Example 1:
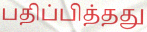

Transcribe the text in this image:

பதிப்பித்தது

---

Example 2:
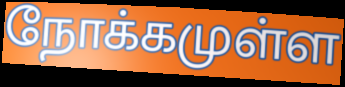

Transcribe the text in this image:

நோக்கமுள்ள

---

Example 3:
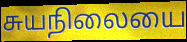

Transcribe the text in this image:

சுயநிலையை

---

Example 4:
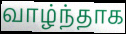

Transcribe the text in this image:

வாழ்ந்தாக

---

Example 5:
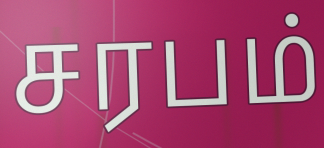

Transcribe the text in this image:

சரபம்